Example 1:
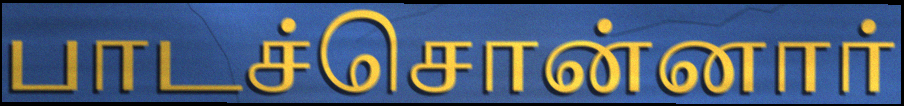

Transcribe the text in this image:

பாடச்சொன்னார்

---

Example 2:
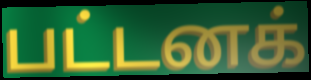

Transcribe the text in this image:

பட்டனக்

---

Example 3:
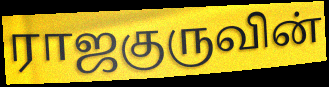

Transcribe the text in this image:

ராஜகுருவின்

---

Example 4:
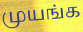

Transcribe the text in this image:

முயங்க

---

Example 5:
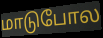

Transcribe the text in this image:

மாடுபோல